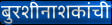
बुरशीनाशकांची